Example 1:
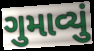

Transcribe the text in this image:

ગુમાવ્યું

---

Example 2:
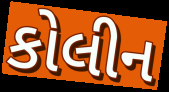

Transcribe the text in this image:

કોલીન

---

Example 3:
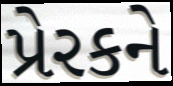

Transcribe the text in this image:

પ્રેરકને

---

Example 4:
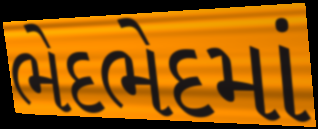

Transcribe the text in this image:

ભેદભેદમાં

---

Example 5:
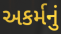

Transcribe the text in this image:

અકર્મનું